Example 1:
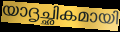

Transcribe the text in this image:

യാദൃച്ഛികമായി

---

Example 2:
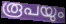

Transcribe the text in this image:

രൂപയും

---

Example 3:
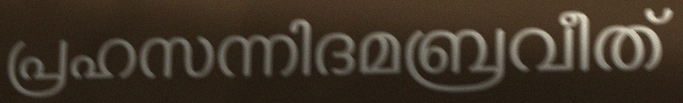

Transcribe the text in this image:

പ്രഹസന്നിദമബ്രവീത്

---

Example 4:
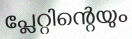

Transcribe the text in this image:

പ്ലേറ്റിന്റെയും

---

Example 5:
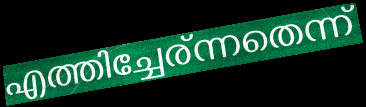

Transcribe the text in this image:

എത്തിച്ചേര്ന്നതെന്ന്